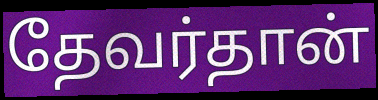
தேவர்தான்